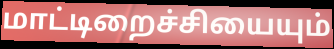
மாட்டிறைச்சியையும்